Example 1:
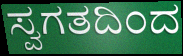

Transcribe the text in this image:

ಸ್ವಗತದಿಂದ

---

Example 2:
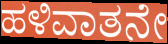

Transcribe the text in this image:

ಹಳಿವಾತನೇ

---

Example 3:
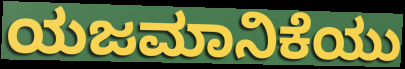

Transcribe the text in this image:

ಯಜಮಾನಿಕೆಯು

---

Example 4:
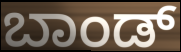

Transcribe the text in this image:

ಬಾಂಡ್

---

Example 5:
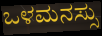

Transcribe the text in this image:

ಒಳಮನಸ್ಸು